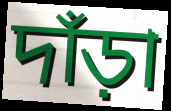
দাঁড়া